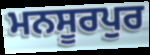
ਮਨਸੂਰਪੁਰ